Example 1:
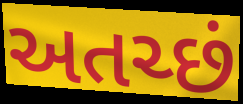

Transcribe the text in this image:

અતચ્છં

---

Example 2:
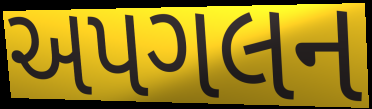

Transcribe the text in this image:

અપગલન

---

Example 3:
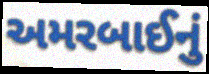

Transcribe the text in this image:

અમરબાઈનું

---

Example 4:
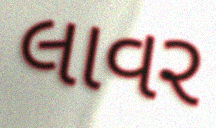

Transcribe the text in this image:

લાવર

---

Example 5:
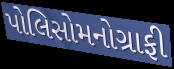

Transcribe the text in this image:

પોલિસોમનોગ્રાફી